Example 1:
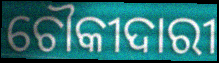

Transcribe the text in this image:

ଚୌକୀଦାରୀ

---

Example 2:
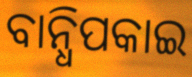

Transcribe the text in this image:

ବାନ୍ଧିପକାଇ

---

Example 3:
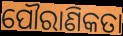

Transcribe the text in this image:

ପୌରାଣିକତା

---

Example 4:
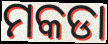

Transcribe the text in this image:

ମକଡା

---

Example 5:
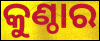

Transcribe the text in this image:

କୁଣ୍ଠାର